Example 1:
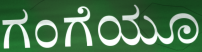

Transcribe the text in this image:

ಗಂಗೆಯೂ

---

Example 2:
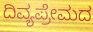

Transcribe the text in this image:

ದಿವ್ಯಪ್ರೇಮದ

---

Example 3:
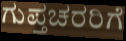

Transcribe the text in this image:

ಗುಪ್ತಚರರಿಗೆ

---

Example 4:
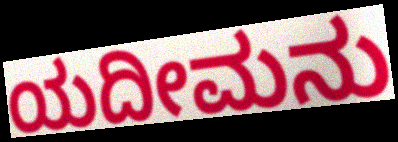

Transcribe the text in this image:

ಯದೀಮನು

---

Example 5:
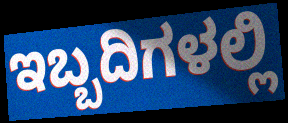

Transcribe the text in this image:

ಇಬ್ಬದಿಗಳಲ್ಲಿ